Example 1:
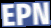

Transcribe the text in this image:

EPN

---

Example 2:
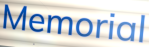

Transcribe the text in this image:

Memorial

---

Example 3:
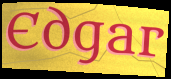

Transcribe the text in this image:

Edgar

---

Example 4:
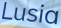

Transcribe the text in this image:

Lusia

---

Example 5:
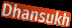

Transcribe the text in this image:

Dhansukh